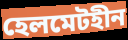
হেলমেটহীন